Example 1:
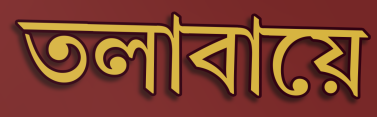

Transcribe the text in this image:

তলাবায়ে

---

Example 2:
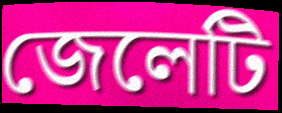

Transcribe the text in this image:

জেলেটি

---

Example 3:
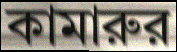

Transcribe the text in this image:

কামারুর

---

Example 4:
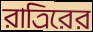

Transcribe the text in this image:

রাত্রিরের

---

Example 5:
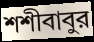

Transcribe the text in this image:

শশীবাবুর